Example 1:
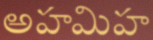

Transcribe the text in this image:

అహమిహ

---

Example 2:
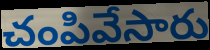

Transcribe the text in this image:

చంపివేసారు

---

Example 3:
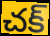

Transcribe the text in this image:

చక్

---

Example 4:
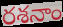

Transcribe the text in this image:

రశనాం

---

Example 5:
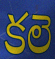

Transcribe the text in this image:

కలె